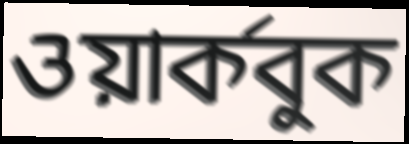
ওয়ার্কবুক